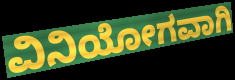
ವಿನಿಯೋಗವಾಗಿ